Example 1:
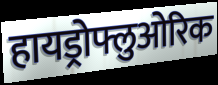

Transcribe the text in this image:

हायड्रोफ्लुओरिक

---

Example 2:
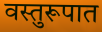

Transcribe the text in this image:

वस्तुरूपात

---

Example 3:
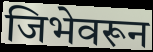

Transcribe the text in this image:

जिभेवरून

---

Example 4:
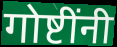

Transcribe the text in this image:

गोष्टींनी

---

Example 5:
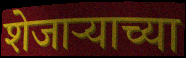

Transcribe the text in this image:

शेजाऱ्याच्या